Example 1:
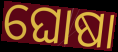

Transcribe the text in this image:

ଘୋଷା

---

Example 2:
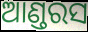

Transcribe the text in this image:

ଆଣ୍ଡରସ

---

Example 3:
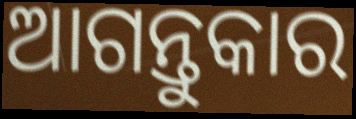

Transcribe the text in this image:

ଆଗନ୍ତୁକାର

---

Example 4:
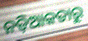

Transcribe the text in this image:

ନଡ଼ିଆକତାରୁ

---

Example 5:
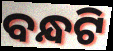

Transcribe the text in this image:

ବନ୍ଧଟି